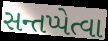
સન્તપ્પેત્વા